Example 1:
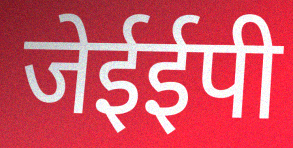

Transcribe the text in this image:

जेईईपी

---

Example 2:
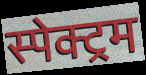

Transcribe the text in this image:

स्पेक्ट्रम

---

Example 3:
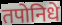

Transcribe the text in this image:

तपोनिधे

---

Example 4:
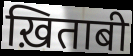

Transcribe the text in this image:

ख़िताबी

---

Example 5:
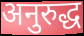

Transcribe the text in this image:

अनुरुद्ध